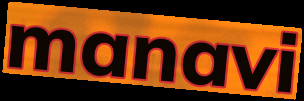
manavi